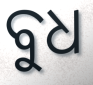
ବୁଧ